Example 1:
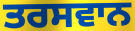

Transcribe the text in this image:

ਤਰਸਵਾਨ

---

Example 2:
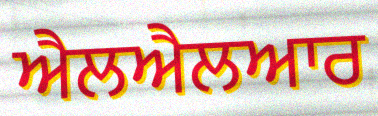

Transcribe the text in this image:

ਐਲਐਲਆਰ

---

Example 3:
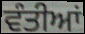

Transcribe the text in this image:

ਵੰਤੀਆਂ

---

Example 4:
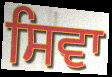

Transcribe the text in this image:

ਸਿਵਾ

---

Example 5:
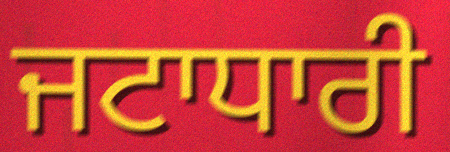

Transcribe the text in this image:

ਜਟਾਧਾਰੀ